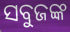
ସବୁଜଙ୍କ